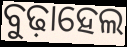
ବୁଢ଼ାହେଲ